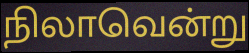
நிலாவென்று